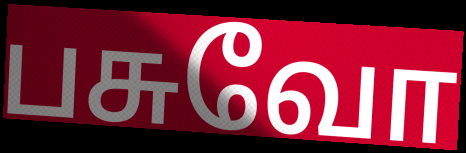
பசுவோ